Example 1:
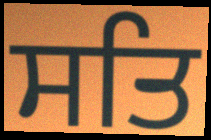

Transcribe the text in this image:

ਸਤਿ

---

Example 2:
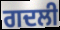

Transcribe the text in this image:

ਗਦਲੀ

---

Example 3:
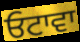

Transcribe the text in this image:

ਓਟਾਵਾ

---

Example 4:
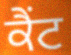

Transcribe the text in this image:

ਕੈਂਟ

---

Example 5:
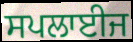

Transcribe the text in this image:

ਸਪਲਾਈਜ